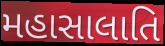
મહાસાલાતિ